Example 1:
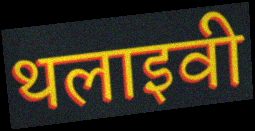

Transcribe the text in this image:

थलाइवी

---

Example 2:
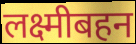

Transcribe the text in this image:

लक्ष्मीबहन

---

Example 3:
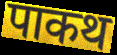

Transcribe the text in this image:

पाकथ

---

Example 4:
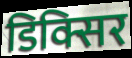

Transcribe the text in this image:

डिक्सिर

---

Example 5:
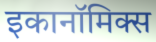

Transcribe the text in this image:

इकानॉमिक्स